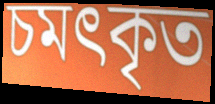
চমৎকৃত